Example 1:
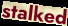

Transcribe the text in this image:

stalked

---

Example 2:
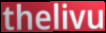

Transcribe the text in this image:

thelivu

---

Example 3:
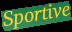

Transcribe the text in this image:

Sportive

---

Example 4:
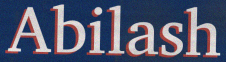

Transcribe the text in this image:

Abilash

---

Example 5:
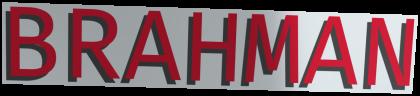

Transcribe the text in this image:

BRAHMAN